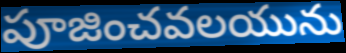
పూజించవలయును